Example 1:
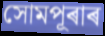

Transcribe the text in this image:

সোমপূৰাৰ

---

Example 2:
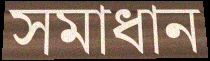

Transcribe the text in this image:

সমাধান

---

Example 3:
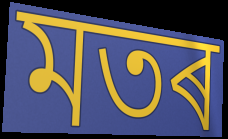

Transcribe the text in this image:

মতৰ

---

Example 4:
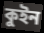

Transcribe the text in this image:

কুইন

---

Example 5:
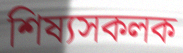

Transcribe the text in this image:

শিষ্যসকলক